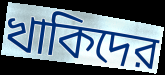
খাকিদের